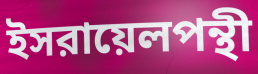
ইসরায়েলপন্থী